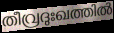
തീവ്രദുഃഖത്തിൽ